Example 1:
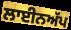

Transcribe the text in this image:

ਲਾਈਨਅੱਪ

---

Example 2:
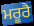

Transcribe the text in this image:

ਮਰੂਰੈ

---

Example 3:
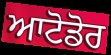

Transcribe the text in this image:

ਆਟੋਡੋਰ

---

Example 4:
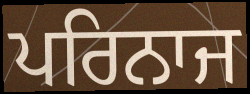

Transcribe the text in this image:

ਪਰਿਨਾਜ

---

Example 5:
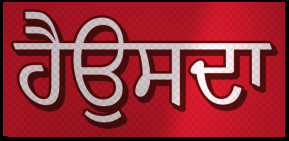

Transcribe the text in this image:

ਹੈਉਸਦਾ